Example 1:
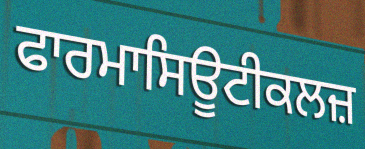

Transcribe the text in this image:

ਫਾਰਮਾਸਿਊਟੀਕਲਜ਼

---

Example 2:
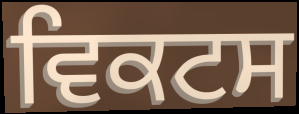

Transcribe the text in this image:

ਵਿਕਟਸ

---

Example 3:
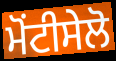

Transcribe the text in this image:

ਮੋਂਟੀਸੇਲੋ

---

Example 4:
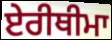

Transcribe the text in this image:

ਏਰੀਥੀਮਾ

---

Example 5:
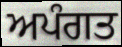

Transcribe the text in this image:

ਅਪੰਗਤ